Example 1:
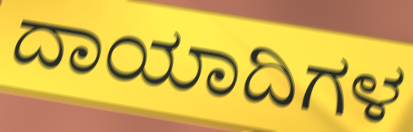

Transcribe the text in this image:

ದಾಯಾದಿಗಳ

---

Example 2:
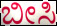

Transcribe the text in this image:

ಬೀಸಿ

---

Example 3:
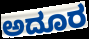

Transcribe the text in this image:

ಅದೂರ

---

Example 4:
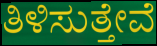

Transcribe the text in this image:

ತಿಳಿಸುತ್ತೇವೆ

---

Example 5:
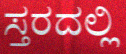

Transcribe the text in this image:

ಸ್ತರದಲ್ಲಿ